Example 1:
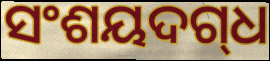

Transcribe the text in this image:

ସଂଶୟଦଗ୍‌ଧ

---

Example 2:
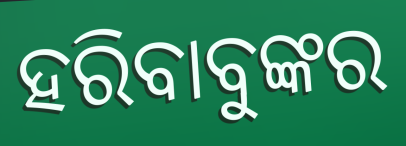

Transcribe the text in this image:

ହରିବାବୁଙ୍କର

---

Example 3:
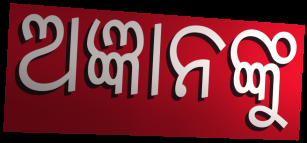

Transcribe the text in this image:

ଅଜ୍ଞାନଙ୍କୁ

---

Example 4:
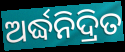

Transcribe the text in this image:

ଅର୍ଦ୍ଧନିଦ୍ରିତ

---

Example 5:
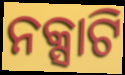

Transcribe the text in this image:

ନକ୍ସାଟି